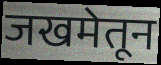
जखमेतून